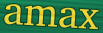
amax